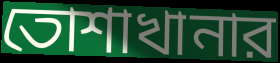
তোশাখানার